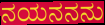
ನಯನನನು